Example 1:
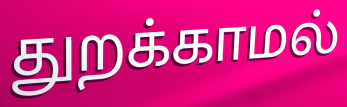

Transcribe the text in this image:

துறக்காமல்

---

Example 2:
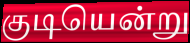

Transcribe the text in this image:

குடியென்று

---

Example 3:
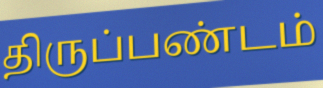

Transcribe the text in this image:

திருப்பண்டம்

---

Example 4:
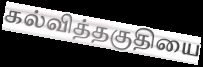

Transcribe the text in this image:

கல்வித்தகுதியை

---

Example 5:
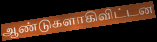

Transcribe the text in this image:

ஆண்டுகளாகிவிட்டன